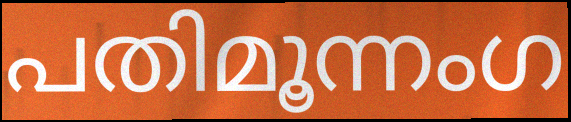
പതിമൂന്നംഗ